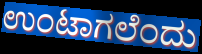
ಉಂಟಾಗಲೆಂದು